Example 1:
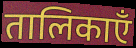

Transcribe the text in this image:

तालिकाएँ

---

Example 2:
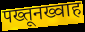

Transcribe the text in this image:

पख्तूनख्वाह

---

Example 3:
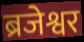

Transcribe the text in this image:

ब्रजेश्वर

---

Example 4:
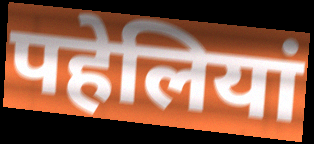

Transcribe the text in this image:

पहेलियां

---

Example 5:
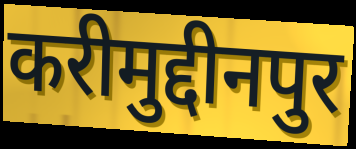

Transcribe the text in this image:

करीमुद्दीनपुर